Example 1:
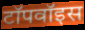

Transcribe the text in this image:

टॉपवॉइस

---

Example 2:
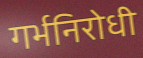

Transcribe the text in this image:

गर्भनिरोधी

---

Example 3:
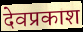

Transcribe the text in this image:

देवप्रकाश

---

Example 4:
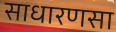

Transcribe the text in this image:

साधारणसा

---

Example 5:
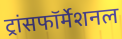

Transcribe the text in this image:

ट्रांसफॉर्मेशनल